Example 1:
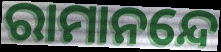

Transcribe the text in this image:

ରାମାନନ୍ଦେ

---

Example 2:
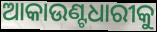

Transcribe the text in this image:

ଆକାଉଣ୍ଟଧାରୀକୁ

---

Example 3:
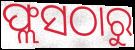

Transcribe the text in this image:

ଫ୍ଲସଠାରୁ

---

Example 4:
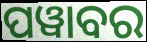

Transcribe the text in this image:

ପୱାବର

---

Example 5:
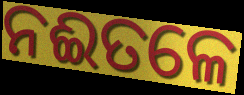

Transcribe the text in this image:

ନଈତଳେ